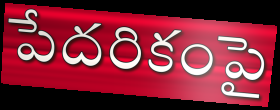
పేదరికంపై